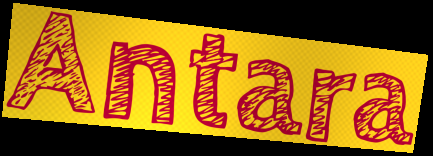
Antara